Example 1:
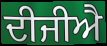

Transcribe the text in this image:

ਦੀਜੀਐ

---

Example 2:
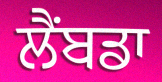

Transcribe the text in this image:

ਲੈਂਬਡਾ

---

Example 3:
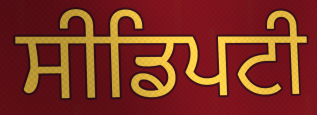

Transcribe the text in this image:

ਸੀਡਿਪਟੀ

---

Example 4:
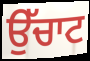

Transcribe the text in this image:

ਉੱਚਾਟ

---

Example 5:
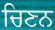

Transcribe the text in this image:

ਚਿਣਨ